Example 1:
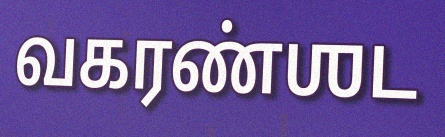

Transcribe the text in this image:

வகரண்ஶட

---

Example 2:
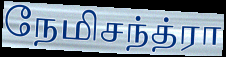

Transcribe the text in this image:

நேமிசந்த்ரா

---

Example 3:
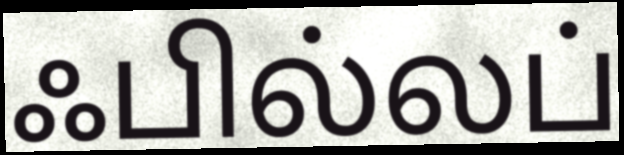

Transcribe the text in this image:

ஃபில்லப்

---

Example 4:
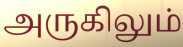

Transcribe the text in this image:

அருகிலும்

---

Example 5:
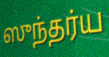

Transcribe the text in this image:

ஸுந்தர்ய